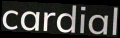
cardial